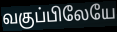
வகுப்பிலேயே